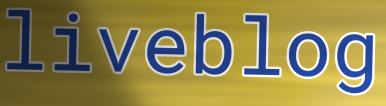
liveblog